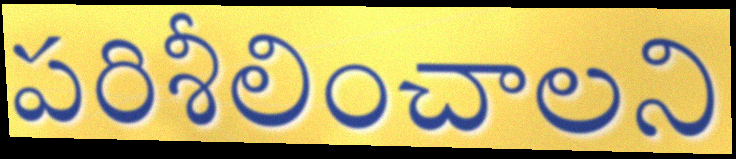
పరిశీలించాలని